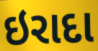
ઇરાદા